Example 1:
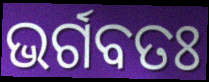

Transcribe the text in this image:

ଭର୍ଗବତଃ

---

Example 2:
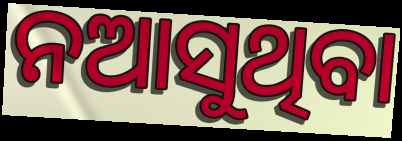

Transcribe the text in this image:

ନଆସୁଥିବା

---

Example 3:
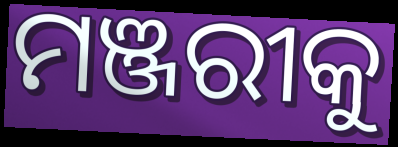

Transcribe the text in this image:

ମଞ୍ଜରୀକୁ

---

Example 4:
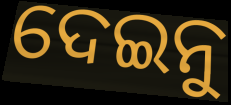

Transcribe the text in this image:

ଦେଇନୁ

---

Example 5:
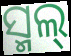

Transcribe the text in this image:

ସ୍ମଲ୍